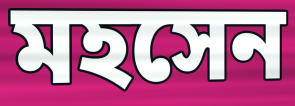
মহসেন